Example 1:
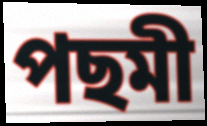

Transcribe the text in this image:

পছমী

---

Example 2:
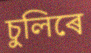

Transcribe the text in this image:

চুলিৰে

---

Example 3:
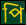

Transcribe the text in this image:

পি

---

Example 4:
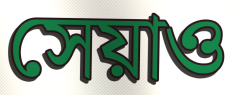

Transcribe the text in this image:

সেয়াও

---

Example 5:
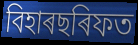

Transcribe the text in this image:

বিহাৰছৰিফত